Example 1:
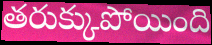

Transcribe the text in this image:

తరుక్కుపోయింది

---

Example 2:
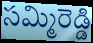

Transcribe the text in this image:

సమ్మిరెడ్డి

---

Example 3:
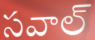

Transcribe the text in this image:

సవాల్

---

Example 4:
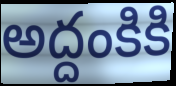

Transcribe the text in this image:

అద్దంకికి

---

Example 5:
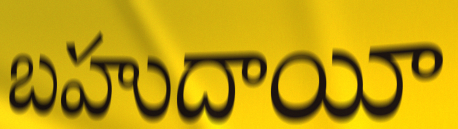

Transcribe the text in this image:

బహుదాయీ